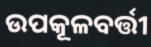
ଉପକୂଳବର୍ତ୍ତୀ